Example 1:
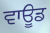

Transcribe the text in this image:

ਵਾਊਡ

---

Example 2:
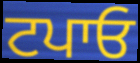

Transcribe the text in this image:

ਟਪਾਓ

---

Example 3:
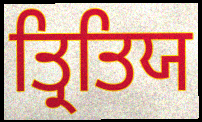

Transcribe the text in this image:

ਤ੍ਰਿਤਿਯ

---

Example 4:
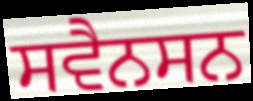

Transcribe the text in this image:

ਸਵੈਨਸਨ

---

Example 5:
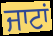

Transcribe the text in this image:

ਜਾਟਾਂ